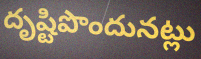
దృష్టిపొందునట్లు